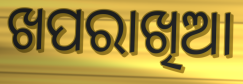
ଖପରାଖିଆ